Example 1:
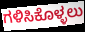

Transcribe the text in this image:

ಗಳಿಸಿಕೊಳ್ಳಲು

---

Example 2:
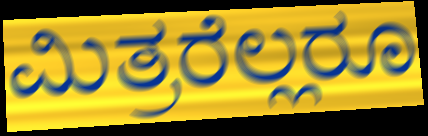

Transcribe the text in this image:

ಮಿತ್ರರೆಲ್ಲರೂ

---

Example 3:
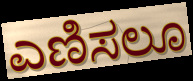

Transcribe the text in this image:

ಎಣಿಸಲೂ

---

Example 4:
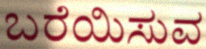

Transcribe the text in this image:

ಬರೆಯಿಸುವ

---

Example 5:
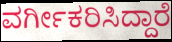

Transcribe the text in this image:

ವರ್ಗೀಕರಿಸಿದ್ದಾರೆ